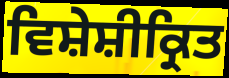
ਵਿਸ਼ੇਸ਼ੀਕ੍ਰਿਤ